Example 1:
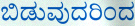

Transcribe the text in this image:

ಬಿಡುವುದರಿಂದ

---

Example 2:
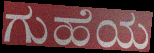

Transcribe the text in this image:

ಗುಹೆಯ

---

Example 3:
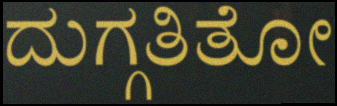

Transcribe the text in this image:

ದುಗ್ಗತಿತೋ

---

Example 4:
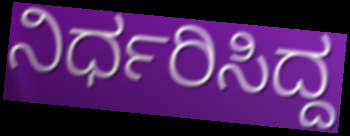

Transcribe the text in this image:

ನಿರ್ಧರಿಸಿದ್ದ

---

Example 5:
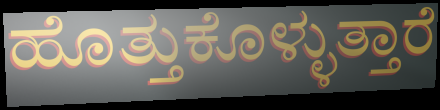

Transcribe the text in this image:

ಹೊತ್ತುಕೊಳ್ಳುತ್ತಾರೆ